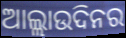
ଆଲ୍ଲାଉଦିନର